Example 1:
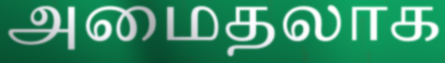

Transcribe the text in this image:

அமைதலாக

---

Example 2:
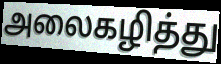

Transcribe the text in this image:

அலைகழித்து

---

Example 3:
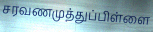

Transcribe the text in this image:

சரவணமுத்துப்பிள்ளை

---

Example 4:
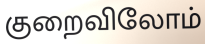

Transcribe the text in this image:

குறைவிலோம்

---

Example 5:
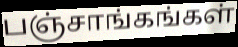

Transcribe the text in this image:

பஞ்சாங்கங்கள்